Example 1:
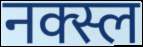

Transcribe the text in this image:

नक्स्ल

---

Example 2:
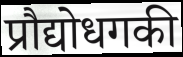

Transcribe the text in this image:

प्रौद्योधगकी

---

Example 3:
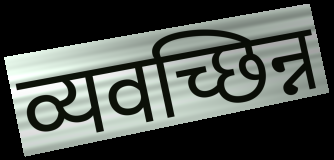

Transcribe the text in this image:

व्यवच्छिन्न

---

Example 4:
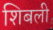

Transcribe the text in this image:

शिबली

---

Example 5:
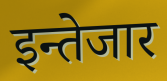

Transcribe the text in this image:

इन्तेजार